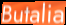
Butalia